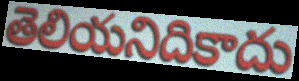
తెలియనిదికాదు